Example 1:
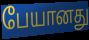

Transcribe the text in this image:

பேயானது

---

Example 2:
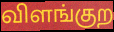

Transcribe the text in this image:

விளங்குற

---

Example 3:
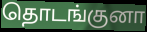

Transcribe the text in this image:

தொடங்குனா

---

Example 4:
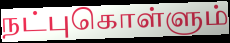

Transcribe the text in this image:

நட்புகொள்ளும்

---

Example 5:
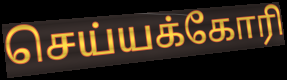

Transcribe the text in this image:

செய்யக்கோரி